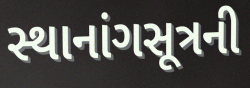
સ્થાનાંગસૂત્રની